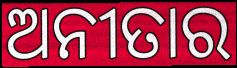
ଅନୀତାର